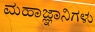
ಮಹಾಜ್ಞಾನಿಗಳು